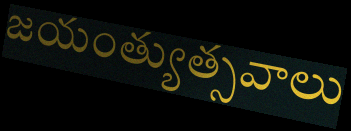
జయంత్యుత్సవాలు